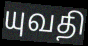
யுவதி